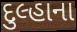
દુલ્હાના